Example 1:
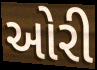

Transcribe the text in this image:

ઓરી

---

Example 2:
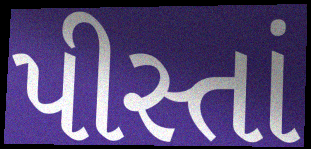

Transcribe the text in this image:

પીસ્તાં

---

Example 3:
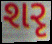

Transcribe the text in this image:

શરૃ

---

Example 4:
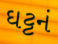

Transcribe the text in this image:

ઘટ્ટનં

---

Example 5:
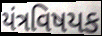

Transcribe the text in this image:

યંત્રવિષયક